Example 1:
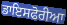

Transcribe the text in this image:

ਡਾਇਸਫੋਰੀਆ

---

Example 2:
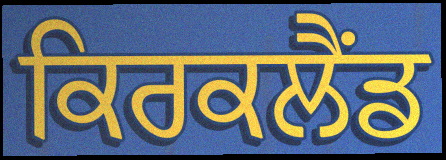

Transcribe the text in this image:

ਕਿਰਕਲੈਂਡ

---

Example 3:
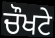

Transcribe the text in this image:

ਚੌਖਟੇ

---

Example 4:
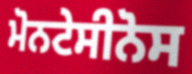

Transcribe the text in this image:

ਮੋਨਟੇਸੀਨੋਸ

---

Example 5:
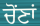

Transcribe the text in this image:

ਚੋਂਣਾਂ